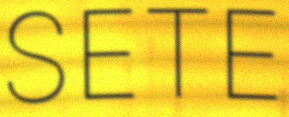
SETE